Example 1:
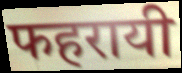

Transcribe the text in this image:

फहरायी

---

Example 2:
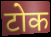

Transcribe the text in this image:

टोक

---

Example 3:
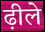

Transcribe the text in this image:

ढ़ीले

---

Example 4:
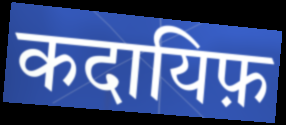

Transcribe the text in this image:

कदायिफ़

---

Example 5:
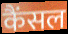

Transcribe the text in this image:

कैंसल